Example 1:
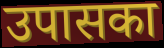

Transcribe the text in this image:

उपासका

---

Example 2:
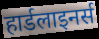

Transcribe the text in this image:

हार्डलाइनर्स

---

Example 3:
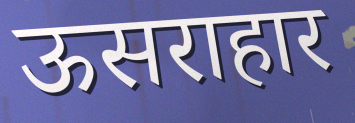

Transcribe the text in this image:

ऊसराहार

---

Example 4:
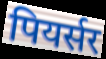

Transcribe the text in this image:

पियर्सर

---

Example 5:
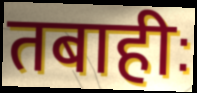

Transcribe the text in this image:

तबाहीः